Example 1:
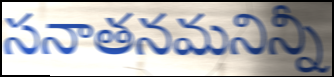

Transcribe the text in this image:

సనాతనమనిన్నీ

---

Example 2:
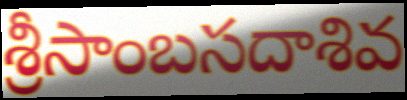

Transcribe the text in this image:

శ్రీసాంబసదాశివ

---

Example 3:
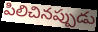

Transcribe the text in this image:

పిలిచినప్పుడు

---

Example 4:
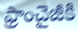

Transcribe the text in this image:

ఫ్రాంచైజీకి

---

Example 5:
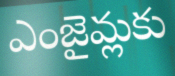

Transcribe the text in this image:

ఎంజైమ్లకు